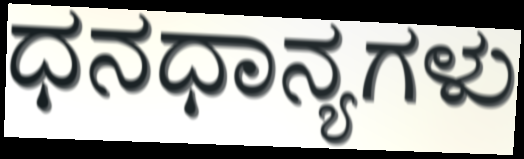
ಧನಧಾನ್ಯಗಳು